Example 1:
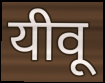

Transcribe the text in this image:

यीवू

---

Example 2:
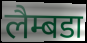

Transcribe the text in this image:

लैम्बडा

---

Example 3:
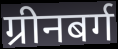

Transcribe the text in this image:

ग्रीनबर्ग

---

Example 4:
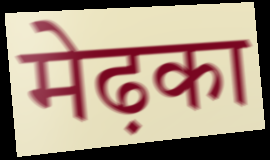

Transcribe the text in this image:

मेढ़का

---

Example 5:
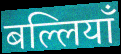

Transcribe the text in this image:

बल्लियाँ